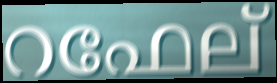
റഫേല്